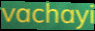
vachayi